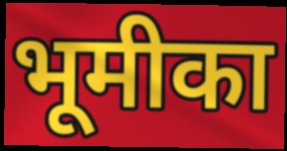
भूमीका